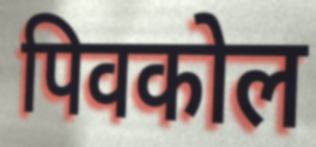
पिवकोल